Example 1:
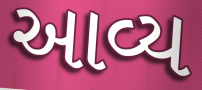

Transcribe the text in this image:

આવ્ય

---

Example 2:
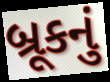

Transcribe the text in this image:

બ્રૂકનું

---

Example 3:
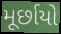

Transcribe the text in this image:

મૂર્છાયો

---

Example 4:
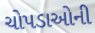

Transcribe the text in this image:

ચોપડાઓની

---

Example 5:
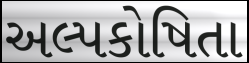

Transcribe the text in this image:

અલ્પકોષિતા